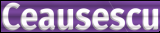
Ceausescu